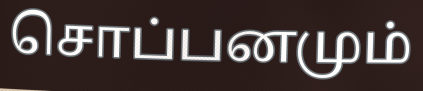
சொப்பனமும்